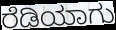
ರೆಡಿಯಾಗು